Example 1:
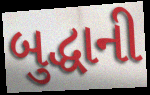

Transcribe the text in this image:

બુદ્ધાની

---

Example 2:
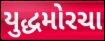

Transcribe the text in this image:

યુદ્ધમોરચા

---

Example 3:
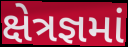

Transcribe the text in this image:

ક્ષેત્રજ્ઞમાં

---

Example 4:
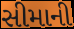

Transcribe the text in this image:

સીમાની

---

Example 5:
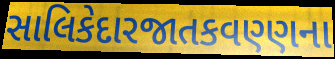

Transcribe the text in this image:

સાલિકેદારજાતકવણ્ણના